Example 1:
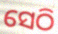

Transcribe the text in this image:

ସେଠି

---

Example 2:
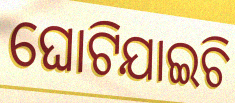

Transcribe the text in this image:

ଘୋଟିଯାଇଚି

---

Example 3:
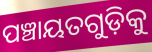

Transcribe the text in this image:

ପଞ୍ଚାୟତଗୁଡ଼ିକୁ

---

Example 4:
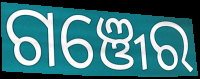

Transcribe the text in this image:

ଗଞ୍ଜେର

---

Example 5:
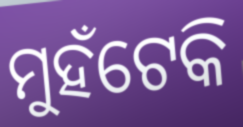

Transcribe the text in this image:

ମୁହଁଟେକି